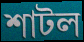
শাটল